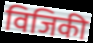
विजिकी